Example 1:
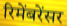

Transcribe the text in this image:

रिमेंबरेंसर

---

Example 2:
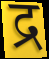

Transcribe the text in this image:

द्र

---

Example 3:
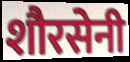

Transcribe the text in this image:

शौरसेनी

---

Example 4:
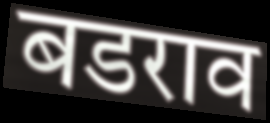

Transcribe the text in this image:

बडराव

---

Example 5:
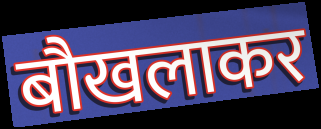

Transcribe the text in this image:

बौखलाकर